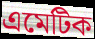
এমেটিক